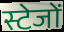
स्टेजों